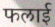
फलाई